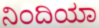
ನಿಂದಿಯಾ